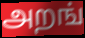
அறங்